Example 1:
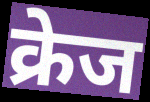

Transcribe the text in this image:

क्रेज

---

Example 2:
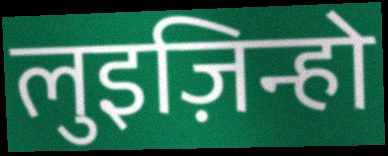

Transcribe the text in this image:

लुइज़िन्हो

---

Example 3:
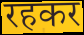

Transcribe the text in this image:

रहकर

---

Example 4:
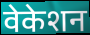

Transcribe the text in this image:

वेकेशन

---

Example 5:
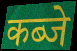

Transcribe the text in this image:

कब्जे